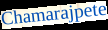
Chamarajpete